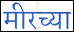
मीरच्या